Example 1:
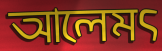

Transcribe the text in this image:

আলেমৎ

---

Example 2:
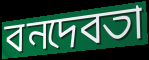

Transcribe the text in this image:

বনদেবতা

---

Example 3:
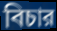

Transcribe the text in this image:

বিচার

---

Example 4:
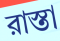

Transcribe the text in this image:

রাস্তা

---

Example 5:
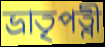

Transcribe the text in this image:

ভ্রাতৃপত্নী